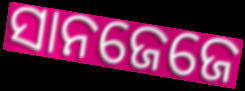
ସାନଜେଜେ